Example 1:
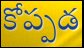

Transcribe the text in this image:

కోప్పడ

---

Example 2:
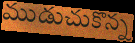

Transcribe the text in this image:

ముడుచుకొన్న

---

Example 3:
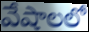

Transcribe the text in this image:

వేషాలలో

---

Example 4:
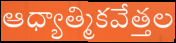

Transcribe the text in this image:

ఆధ్యాత్మికవేత్తల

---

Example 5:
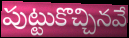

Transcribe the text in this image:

పుట్టుకొచ్చినవే